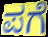
ಪಗೆ